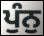
ਪੁੰਨੁ